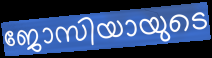
ജോസിയായുടെ